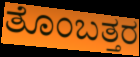
ತೊಂಬತ್ತರ